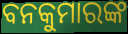
ବନକୁମାରଙ୍କ